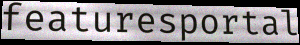
featuresportal